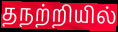
தநற்றியில்